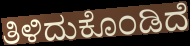
ತಿಳಿದುಕೊಂಡಿದೆ